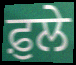
ਫ਼ੁਲੇ